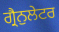
ਗ੍ਰੈਨੁਲੇਟਰ